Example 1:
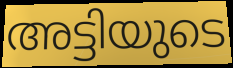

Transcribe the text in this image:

അട്ടിയുടെ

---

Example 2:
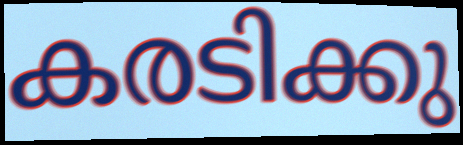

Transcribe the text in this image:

കരടിക്കു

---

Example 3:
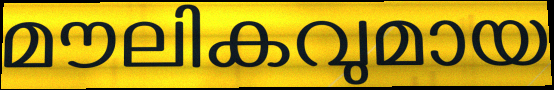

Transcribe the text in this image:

മൗലികവുമായ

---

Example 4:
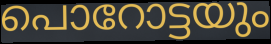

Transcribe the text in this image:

പൊറോട്ടയും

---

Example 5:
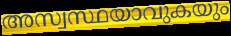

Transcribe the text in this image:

അസ്വസ്ഥയാവുകയും